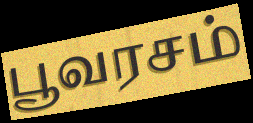
பூவரசம்